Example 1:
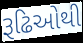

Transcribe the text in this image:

રૂઢિઓથી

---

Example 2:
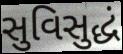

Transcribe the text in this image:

સુવિસુદ્ધં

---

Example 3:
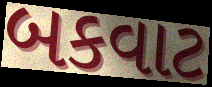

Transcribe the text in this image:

બકવાટ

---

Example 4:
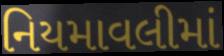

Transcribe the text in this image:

નિયમાવલીમાં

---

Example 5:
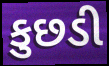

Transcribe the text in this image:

કુછડી